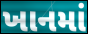
ખાનમાં